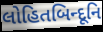
લોહિતબિન્દૂનિ